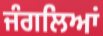
ਜੰਗਲਿਆਂ